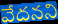
వేదనని